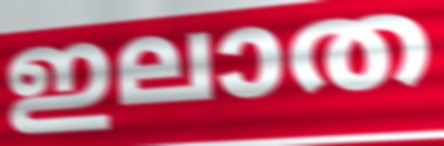
ഇലാത